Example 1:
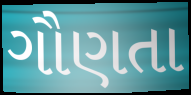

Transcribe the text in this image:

ગૌણતા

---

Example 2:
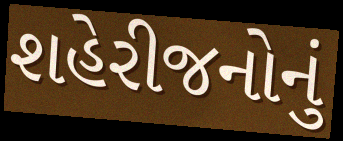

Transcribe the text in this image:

શહેરીજનોનું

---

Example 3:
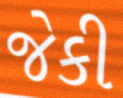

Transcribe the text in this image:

જેકી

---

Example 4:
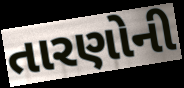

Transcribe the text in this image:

તારણોની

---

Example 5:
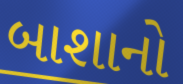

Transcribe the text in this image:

બાશાનો